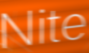
Nite